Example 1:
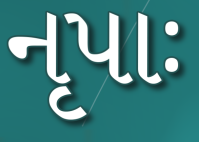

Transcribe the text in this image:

નૃપાઃ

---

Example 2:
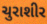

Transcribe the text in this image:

ચુરાશીર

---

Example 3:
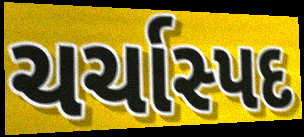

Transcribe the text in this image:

ચર્ચાસ્પદ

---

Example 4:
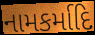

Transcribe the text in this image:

નામકર્માદિ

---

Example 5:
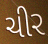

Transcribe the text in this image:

ચીર